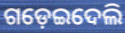
ଗଡ଼େଇଦେଲି